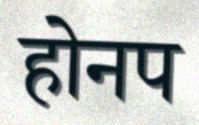
होनप